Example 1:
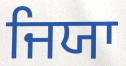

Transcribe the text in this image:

ਜਿਯਾ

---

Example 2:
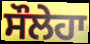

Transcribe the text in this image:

ਸੌਲੇਹਾ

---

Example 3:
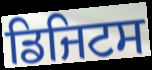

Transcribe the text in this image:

ਡਿਜਿਟਸ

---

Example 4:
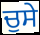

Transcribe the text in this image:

ਚੁਸੇ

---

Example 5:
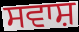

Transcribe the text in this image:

ਸਵਾਸ਼